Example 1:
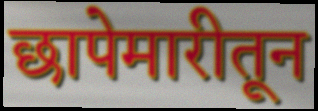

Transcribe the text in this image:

छापेमारीतून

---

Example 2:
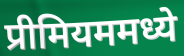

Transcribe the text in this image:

प्रीमियममध्ये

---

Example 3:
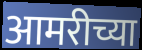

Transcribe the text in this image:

आमरीच्या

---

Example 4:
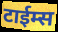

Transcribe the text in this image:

टाईम्स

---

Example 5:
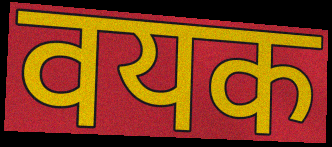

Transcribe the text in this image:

वयक